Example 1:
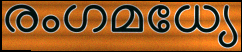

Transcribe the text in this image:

രംഗമധ്യേ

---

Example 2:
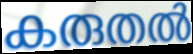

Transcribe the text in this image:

കരുതൽ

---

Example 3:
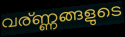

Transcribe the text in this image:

വര്ണ്ണങ്ങളുടെ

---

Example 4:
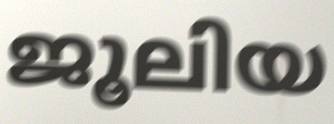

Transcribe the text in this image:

ജൂലിയ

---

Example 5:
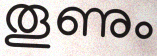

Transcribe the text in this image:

തൂണും